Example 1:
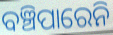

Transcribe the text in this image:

ବଞ୍ଚିପାରେନି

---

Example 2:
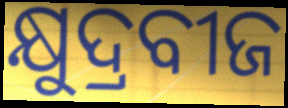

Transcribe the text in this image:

କ୍ଷୁଦ୍ରବୀଜ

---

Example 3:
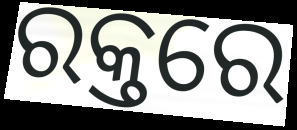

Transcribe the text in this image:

ରକ୍ତରେ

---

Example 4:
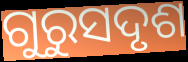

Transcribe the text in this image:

ଗୁରୁସଦୃଶ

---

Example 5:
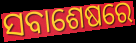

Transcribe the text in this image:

ସବାଶେଷରେ